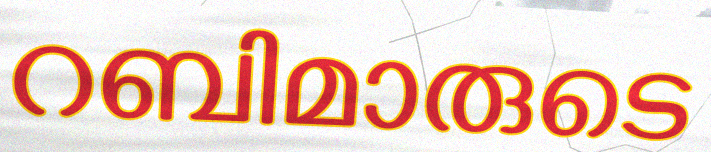
റബിമാരുടെ